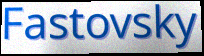
Fastovsky